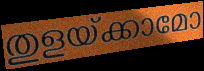
തുളയ്‌ക്കാമോ